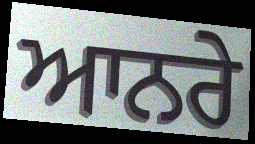
ਆਨਰੇ